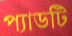
প্যাডটি